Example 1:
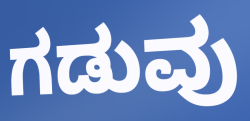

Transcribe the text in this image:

ಗಡುವು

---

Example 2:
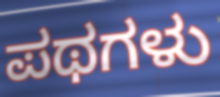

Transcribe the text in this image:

ಪಥಗಳು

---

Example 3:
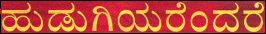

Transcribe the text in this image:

ಹುಡುಗಿಯರೆಂದರೆ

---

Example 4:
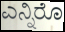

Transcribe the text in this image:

ಎನ್ನಿರೊ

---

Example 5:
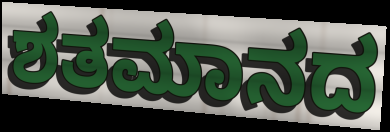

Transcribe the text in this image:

ಶತಮಾನದ